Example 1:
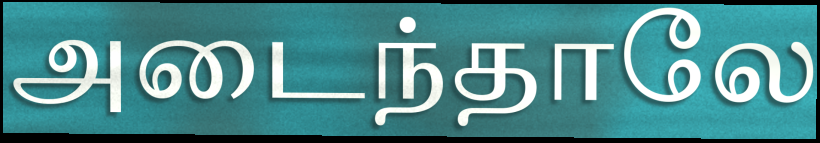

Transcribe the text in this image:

அடைந்தாலே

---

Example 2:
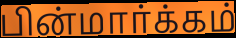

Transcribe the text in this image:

பின்மார்க்கம்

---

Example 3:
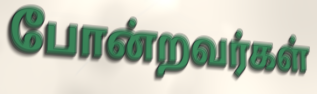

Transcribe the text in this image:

போன்றவர்கள்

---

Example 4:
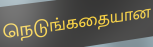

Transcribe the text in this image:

நெடுங்கதையான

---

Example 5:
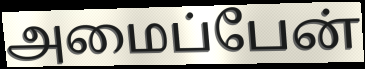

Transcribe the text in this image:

அமைப்பேன்